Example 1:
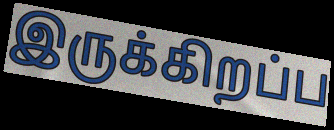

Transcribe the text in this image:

இருக்கிறப்ப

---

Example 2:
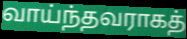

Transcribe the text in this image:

வாய்ந்தவராகத்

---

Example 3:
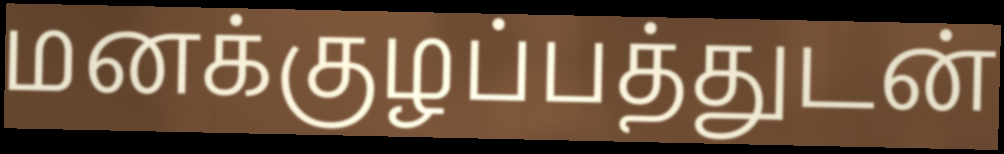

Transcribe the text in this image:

மனக்குழப்பத்துடன்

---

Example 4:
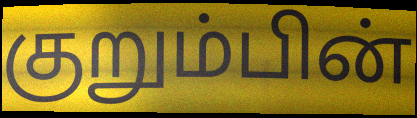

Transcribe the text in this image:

குறும்பின்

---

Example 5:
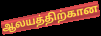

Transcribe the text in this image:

ஆலயத்திற்கான